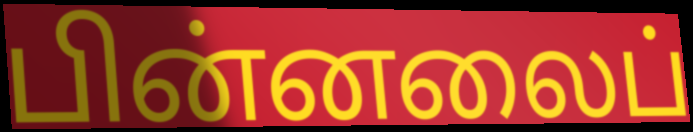
பின்னலைப்